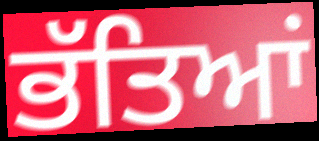
ਭੱਤਿਆਂ